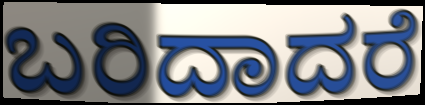
ಬರಿದಾದರೆ